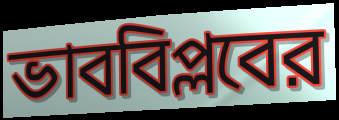
ভাববিপ্লবের